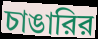
চাঙারির